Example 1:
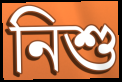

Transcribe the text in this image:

নিশু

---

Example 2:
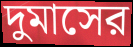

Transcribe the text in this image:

দুমাসের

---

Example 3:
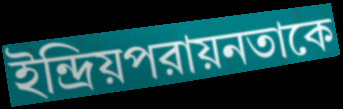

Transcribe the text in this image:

ইন্দ্রিয়পরায়নতাকে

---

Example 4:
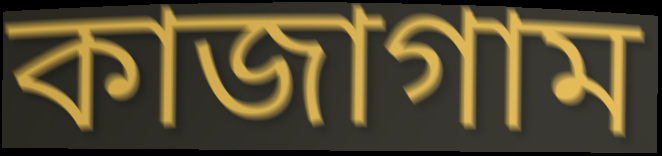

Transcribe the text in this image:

কাজাগাম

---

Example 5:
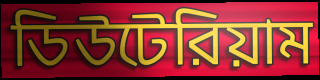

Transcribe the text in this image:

ডিউটেরিয়াম